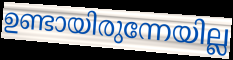
ഉണ്ടായിരുന്നേയില്ല